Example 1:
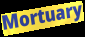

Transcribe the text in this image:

Mortuary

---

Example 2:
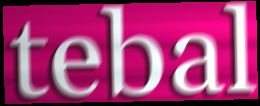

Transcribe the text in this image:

tebal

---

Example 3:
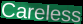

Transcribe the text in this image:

Careless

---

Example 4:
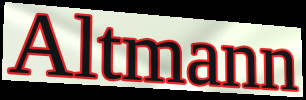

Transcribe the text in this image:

Altmann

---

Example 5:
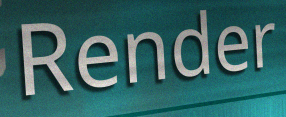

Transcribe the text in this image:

Render